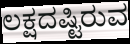
ಲಕ್ಷದಷ್ಟಿರುವ